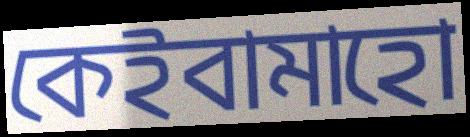
কেইবামাহো